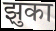
झुका